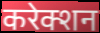
करेक्शन